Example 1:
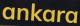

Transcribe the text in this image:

ankara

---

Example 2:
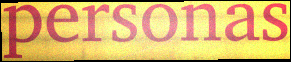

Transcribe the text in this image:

personas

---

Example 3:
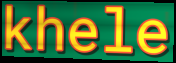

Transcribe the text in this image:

khele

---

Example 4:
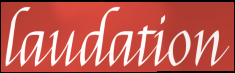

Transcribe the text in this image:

laudation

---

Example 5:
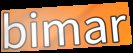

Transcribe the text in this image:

bimar